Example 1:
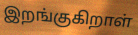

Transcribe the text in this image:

இறங்குகிறாள்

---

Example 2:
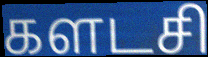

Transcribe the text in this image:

களடசி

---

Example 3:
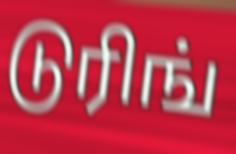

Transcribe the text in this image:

டுரிங்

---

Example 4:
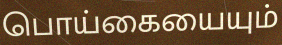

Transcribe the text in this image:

பொய்கையையும்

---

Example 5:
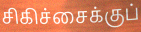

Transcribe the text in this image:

சிகிச்சைக்குப்